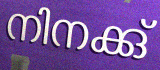
നിനക്കു്